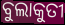
ବୁଲାକୁତୀ